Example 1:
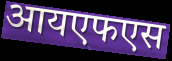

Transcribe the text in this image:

आयएफएस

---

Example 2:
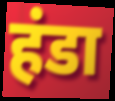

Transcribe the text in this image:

हंडा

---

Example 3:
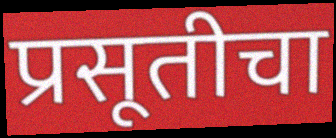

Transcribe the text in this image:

प्रसूतीचा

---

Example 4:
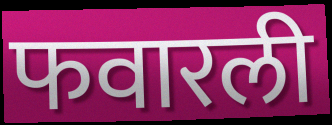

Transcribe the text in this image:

फवारली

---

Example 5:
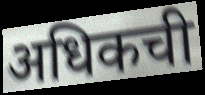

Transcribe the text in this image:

अधिकची